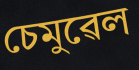
চেমুৱেল